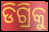
ଡିଗ୍ରିକୁ